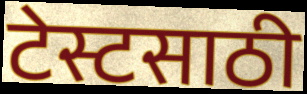
टेस्टसाठी